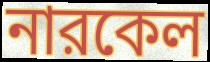
নারকেল